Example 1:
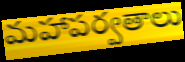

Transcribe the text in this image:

మహాపర్వతాలు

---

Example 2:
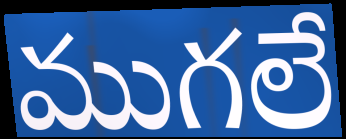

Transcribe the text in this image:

ముగలే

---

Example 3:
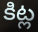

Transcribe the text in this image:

కిట్ల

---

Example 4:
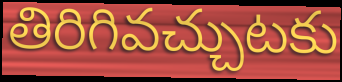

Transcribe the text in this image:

తిరిగివచ్చుటకు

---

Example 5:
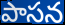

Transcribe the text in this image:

పాసన